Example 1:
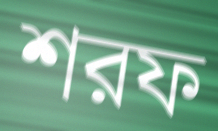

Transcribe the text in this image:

শরফ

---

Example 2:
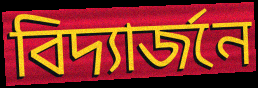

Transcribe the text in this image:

বিদ্যার্জনে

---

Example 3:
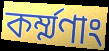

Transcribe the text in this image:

কর্ম্মণাং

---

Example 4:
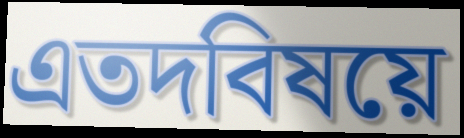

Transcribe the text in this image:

এতদবিষয়ে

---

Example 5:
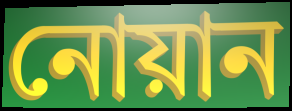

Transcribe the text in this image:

নোয়ান